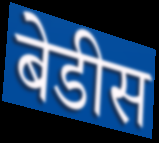
बेडीस